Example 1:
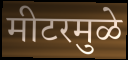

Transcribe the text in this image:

मीटरमुळे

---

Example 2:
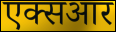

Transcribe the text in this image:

एक्सआर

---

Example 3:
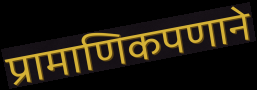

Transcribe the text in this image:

प्रामाणिकपणाने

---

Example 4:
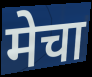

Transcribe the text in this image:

मेचा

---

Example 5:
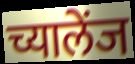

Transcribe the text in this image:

च्यालेंज